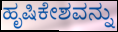
ಹೃಷಿಕೇಶವನ್ನು